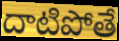
దాటిపోతే